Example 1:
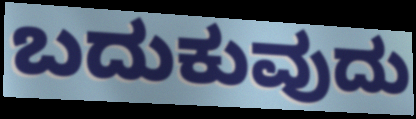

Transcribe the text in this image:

ಬದುಕುವುದು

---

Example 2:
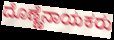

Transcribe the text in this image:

ದೊಣ್ಣೆನಾಯಕರು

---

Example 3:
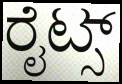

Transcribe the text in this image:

ರೈಟ್ಸ್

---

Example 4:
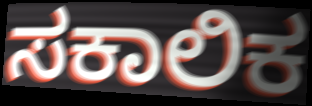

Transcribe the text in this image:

ಸಕಾಲಿಕ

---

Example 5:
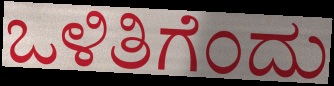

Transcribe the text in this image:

ಒಳಿತಿಗೆಂದು